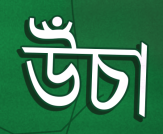
উঁচা